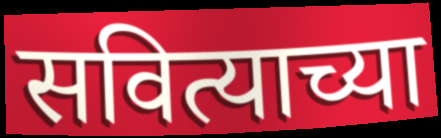
सवित्याच्या